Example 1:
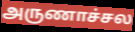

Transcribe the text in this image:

அருணாச்சல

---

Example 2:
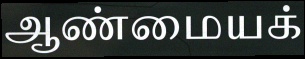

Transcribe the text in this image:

ஆண்மையக்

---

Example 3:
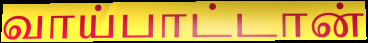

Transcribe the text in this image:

வாய்பாட்டான்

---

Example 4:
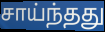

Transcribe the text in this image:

சாய்ந்தது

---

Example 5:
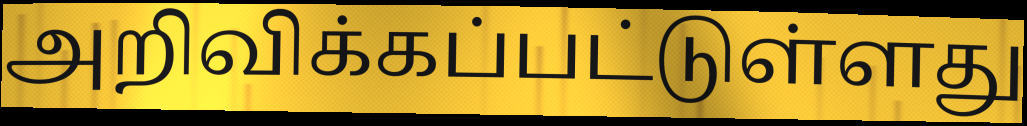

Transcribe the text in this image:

அறிவிக்கப்பட்டுள்ளது